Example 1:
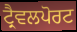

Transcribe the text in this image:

ਟ੍ਰੈਵਲਪੋਰਟ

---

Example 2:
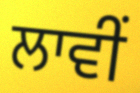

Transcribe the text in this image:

ਲਾਵੀਂ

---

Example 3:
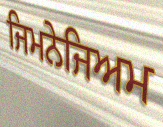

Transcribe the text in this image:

ਜਿਮਨੇਜਿਅਮ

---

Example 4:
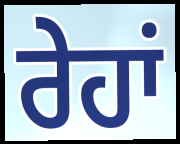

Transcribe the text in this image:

ਰੇਹਾਂ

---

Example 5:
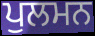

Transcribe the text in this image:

ਪੁਲਮਨ